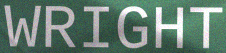
WRIGHT